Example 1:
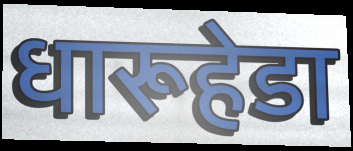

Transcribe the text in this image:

धारूहेडा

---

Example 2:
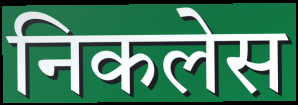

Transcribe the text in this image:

निकलेस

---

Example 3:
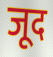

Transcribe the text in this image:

जूद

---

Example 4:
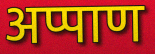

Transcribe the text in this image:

अप्पाण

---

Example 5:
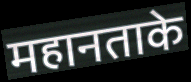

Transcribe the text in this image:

महानताके